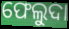
ଫେଲୁଦା